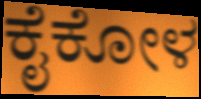
ಕೈಕೋಳ